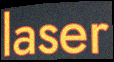
laser